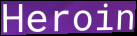
Heroin